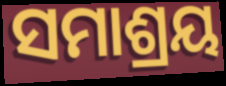
ସମାଶ୍ରୟ